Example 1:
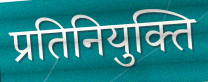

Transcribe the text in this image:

प्रतिनियुक्ति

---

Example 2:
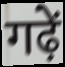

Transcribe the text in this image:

गढ़ें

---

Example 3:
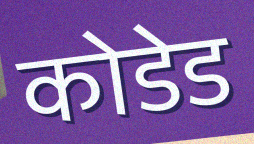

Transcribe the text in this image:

कोडेड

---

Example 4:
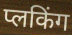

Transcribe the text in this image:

प्लकिंग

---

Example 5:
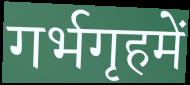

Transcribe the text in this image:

गर्भगृहमें